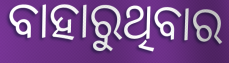
ବାହାରୁଥିବାର